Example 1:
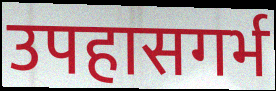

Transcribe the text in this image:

उपहासगर्भ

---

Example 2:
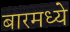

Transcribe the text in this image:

बारमध्ये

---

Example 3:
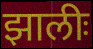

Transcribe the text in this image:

झालीः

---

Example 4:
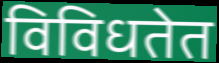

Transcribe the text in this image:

विविधतेत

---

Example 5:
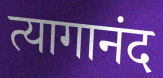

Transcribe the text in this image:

त्यागानंद